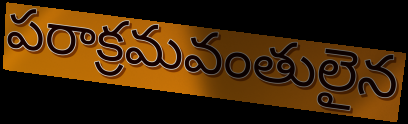
పరాక్రమవంతులైన